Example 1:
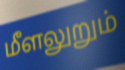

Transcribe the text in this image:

மீளலுறும்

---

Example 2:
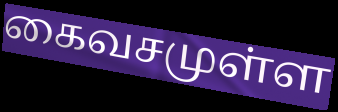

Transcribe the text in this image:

கைவசமுள்ள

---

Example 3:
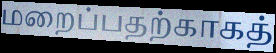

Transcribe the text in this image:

மறைப்பதற்காகத்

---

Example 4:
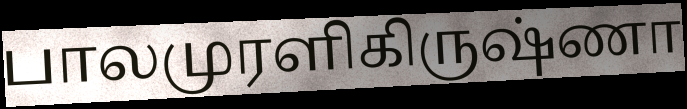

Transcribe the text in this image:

பாலமுரளிகிருஷ்ணா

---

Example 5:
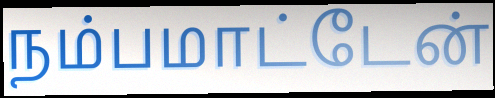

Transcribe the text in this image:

நம்பமாட்டேன்